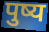
पुष्य